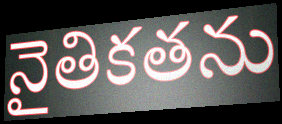
నైతికతను